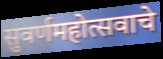
सुवर्णमहोत्सवाचे